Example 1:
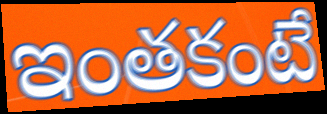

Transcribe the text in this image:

ఇంతకంటే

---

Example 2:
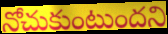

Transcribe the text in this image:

నోచుకుంటుందని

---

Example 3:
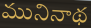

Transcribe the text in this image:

మునినాథ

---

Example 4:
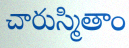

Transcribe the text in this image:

చారుస్మితాం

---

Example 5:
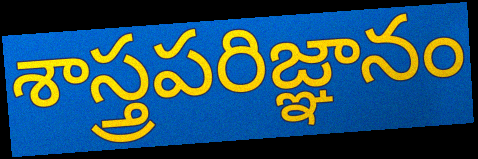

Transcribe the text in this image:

శాస్త్రపరిజ్ఞానం